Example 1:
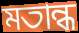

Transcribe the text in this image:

মতান্ধ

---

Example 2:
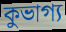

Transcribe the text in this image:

কুভাগ্য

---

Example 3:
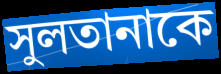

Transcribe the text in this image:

সুলতানাকে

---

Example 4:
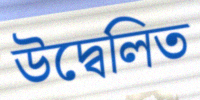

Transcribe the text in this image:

উদ্বেলিত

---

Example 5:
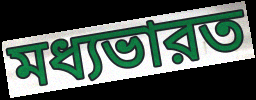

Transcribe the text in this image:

মধ্যভারত